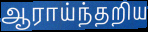
ஆராய்ந்தறிய